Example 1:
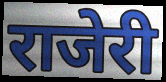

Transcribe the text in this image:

राजेरी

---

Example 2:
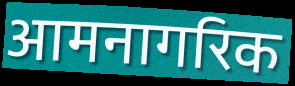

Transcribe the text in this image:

आमनागरिक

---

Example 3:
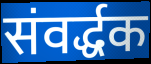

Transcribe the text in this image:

संवर्द्धक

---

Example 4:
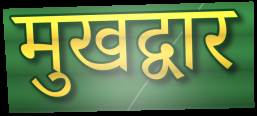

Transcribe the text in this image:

मुखद्वार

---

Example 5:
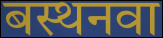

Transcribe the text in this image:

बस्थनवा